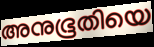
അനുഭൂതിയെ